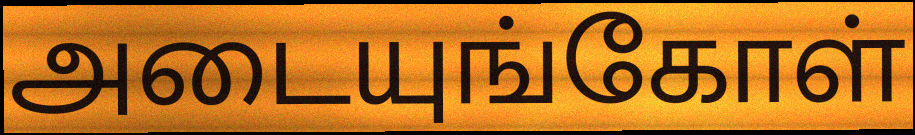
அடையுங்கோள்